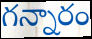
గన్నారం